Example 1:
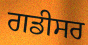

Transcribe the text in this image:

ਗਡੀਸਰ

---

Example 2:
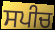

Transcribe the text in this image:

ਸਪੀਚ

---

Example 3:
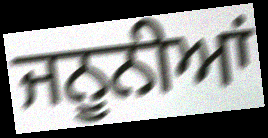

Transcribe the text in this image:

ਜਨੂਨੀਆਂ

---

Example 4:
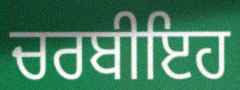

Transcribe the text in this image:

ਚਰਬੀਇਹ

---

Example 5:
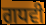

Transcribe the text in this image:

ਗਧਵੀ